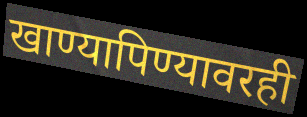
खाण्यापिण्यावरही